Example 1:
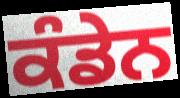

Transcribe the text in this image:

ਕੰਡੇਨ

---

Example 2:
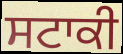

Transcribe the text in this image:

ਸਟਾਕੀ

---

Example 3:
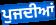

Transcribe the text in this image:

ਪੁਜਦੀਆਂ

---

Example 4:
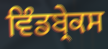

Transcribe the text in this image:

ਵਿੰਡਬ੍ਰੇਕਸ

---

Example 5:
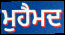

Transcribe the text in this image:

ਮੁਹੈਮਦ